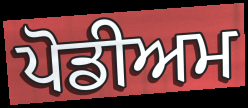
ਪੋਡੀਅਮ